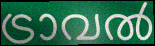
ട്രാവൽ